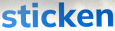
sticken